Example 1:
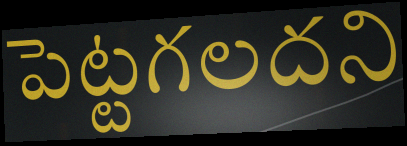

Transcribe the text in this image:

పెట్టగలదని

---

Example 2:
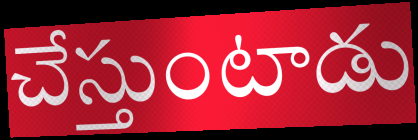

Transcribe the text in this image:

చేస్తుంటాడు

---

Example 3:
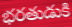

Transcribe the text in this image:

భరతుడుకి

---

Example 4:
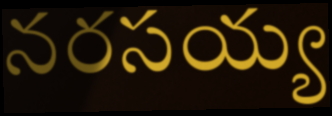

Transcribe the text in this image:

నరసయ్య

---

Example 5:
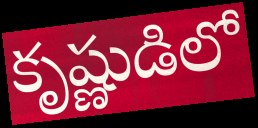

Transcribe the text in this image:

కృష్ణుడిలో